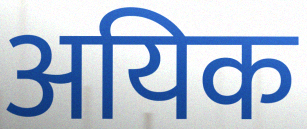
अयिक